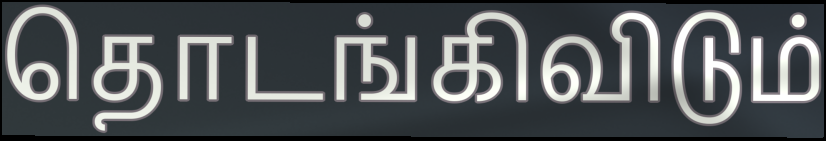
தொடங்கிவிடும்